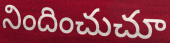
నిందించుచూ